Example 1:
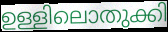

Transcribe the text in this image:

ഉള്ളിലൊതുക്കി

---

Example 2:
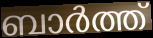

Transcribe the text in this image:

ബാർത്ത്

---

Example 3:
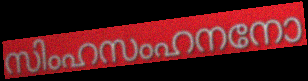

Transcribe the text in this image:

സിംഹസംഹനനോ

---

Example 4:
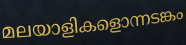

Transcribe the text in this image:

മലയാളികളൊന്നടങ്കം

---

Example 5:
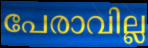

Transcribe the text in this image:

പേരാവില്ല